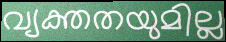
വ്യക്തതയുമില്ല